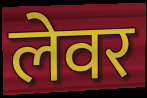
लेवर